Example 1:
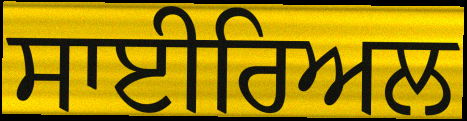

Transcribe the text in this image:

ਸਾਈਰਿਅਲ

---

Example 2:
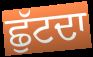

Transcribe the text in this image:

ਛੁੱਟਦਾ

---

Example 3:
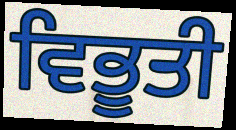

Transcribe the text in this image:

ਵਿਭੂਤੀ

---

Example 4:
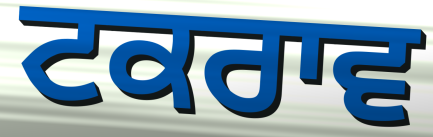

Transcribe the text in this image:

ਟਕਰਾਵ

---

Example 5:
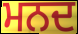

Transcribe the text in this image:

ਮਨਦ